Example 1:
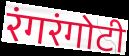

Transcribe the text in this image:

रंगरंगोटी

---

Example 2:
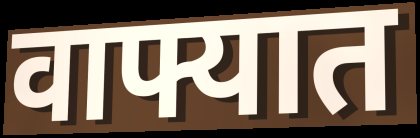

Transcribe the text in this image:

वाफ्यात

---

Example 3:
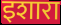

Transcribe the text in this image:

इशारा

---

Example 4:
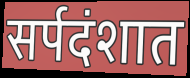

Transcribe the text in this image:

सर्पदंशात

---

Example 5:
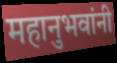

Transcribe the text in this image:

महानुभवांनी